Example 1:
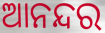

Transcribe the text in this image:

ଆନନ୍ଦର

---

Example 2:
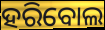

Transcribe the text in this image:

ହରିବୋଲ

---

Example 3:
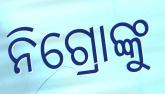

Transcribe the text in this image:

ନିଗ୍ରୋଙ୍କୁ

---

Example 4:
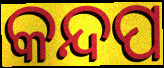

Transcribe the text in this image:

କନ୍ଦପ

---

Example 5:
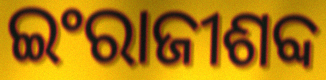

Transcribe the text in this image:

ଇଂରାଜୀଶବ୍ଦ